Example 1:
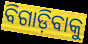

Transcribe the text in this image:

ବିଗାଡ଼ିବାକୁ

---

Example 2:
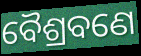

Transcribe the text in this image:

ବୈଶ୍ରବଣେ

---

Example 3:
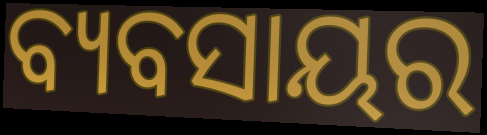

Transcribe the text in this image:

ବ୍ୟବସାୟର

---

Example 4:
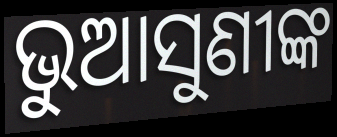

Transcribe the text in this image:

ଭୁଆସୁଣୀଙ୍କ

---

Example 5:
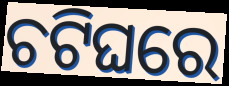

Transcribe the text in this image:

ଚଟିଘରେ